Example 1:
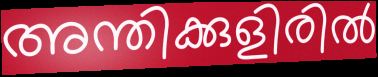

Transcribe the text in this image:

അന്തിക്കുളിരിൽ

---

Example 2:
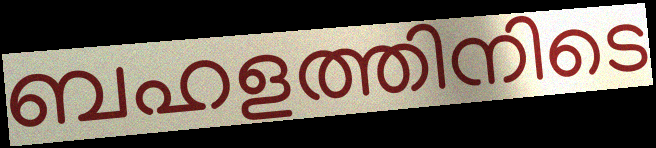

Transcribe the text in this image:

ബഹളത്തിനിടെ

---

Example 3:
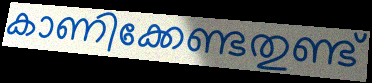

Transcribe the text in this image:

കാണിക്കേണ്ടതുണ്ട്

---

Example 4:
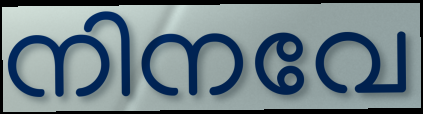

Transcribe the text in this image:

നിനവേ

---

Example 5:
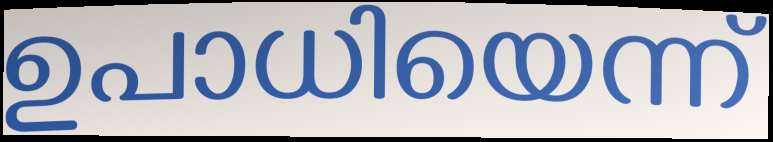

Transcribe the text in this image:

ഉപാധിയെന്ന്